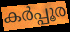
കർപ്പൂര